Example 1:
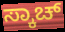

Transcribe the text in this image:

ಸ್ಕಾಚ್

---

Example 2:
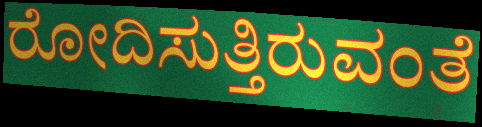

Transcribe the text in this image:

ರೋದಿಸುತ್ತಿರುವಂತೆ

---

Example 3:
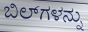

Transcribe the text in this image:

ಬಿಲ್‌ಗಳನ್ನು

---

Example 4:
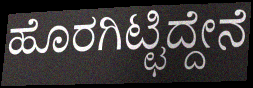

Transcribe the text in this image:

ಹೊರಗಿಟ್ಟಿದ್ದೇನೆ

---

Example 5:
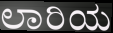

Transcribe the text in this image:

ಲಾರಿಯ